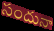
సందునా